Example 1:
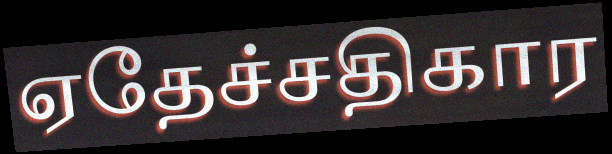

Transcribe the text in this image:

ஏதேச்சதிகார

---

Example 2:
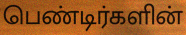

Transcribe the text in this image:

பெண்டிர்களின்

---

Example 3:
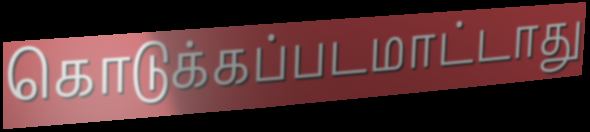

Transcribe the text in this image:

கொடுக்கப்படமாட்டாது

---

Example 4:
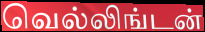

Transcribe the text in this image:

வெல்லிங்டன்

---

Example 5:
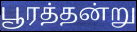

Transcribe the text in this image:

பூரத்தன்று